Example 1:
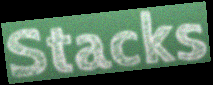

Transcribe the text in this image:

Stacks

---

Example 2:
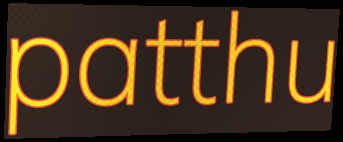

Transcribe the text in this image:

patthu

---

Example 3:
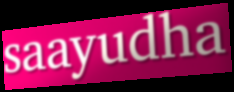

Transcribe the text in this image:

saayudha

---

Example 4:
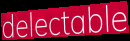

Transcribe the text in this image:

delectable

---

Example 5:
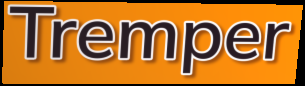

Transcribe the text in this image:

Tremper